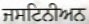
ਜਸਟਿਨੀਅਨ